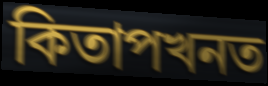
কিতাপখনত